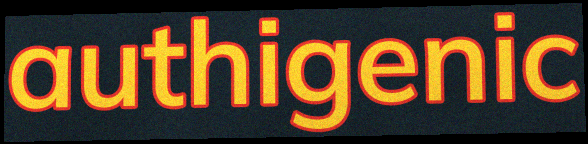
authigenic